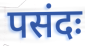
पसंदः